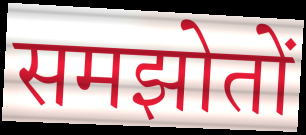
समझोतों